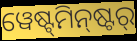
ୱେଷ୍ଟ୍‌ମିନ୍‌ଷ୍ଟର୍